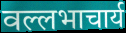
वल्‍लभाचार्य